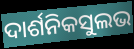
ଦାର୍ଶନିକସୁଲଭ